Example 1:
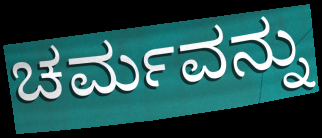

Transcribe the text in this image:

ಚರ್ಮವನ್ನು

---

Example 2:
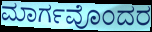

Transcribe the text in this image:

ಮಾರ್ಗವೊಂದರ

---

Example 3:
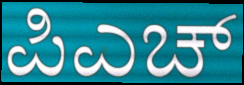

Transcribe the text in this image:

ಪಿಎಚ್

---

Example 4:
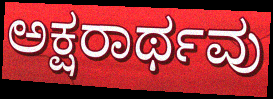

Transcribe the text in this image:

ಅಕ್ಷರಾರ್ಥವು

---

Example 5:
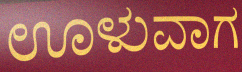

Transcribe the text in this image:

ಊಳುವಾಗ